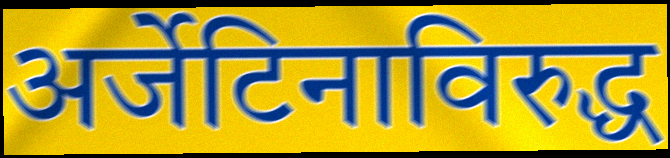
अर्जेटिनाविरुद्ध